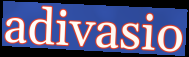
adivasio